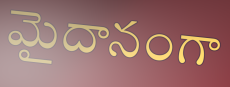
మైదానంగా